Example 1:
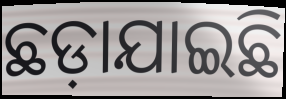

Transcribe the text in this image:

ଛଡ଼ାଯାଇଛି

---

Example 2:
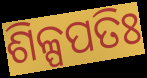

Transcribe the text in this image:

ଶିଳ୍ପପତିଃ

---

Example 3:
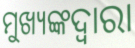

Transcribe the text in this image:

ମୁଖ୍ୟଙ୍କଦ୍ଵାରା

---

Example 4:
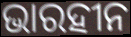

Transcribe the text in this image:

ଭାରହୀନ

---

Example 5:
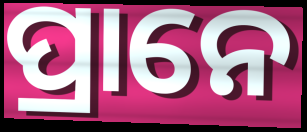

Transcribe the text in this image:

ପ୍ରାନେ